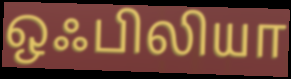
ஒஃபிலியா